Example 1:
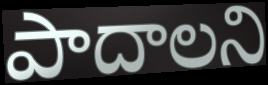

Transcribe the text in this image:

పాదాలని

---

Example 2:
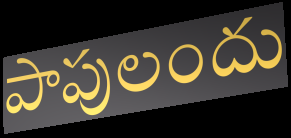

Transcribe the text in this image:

పాపులందు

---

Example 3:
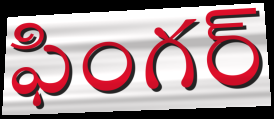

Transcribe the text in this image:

ఫింగర్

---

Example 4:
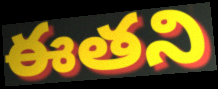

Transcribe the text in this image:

ఈతని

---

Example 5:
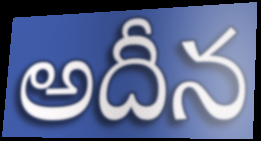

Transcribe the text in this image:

అదీన